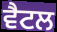
ਵੈਟਲ